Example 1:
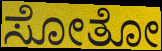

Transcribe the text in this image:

ಸೋತೋ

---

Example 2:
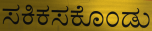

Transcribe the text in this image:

ಸಕಿಕಸಕೊಂಡು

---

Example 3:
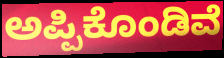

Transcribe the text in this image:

ಅಪ್ಪಿಕೊಂಡಿವೆ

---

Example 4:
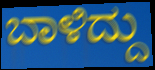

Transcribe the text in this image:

ಬಾಳಿದ್ದು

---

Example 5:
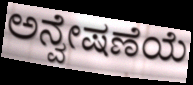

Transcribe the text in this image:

ಅನ್ವೇಷಣೆಯೆ